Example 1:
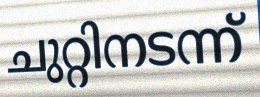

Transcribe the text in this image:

ചുറ്റിനടന്ന്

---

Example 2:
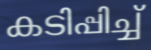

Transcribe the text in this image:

കടിപ്പിച്ച്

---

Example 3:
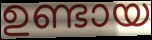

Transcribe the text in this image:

ഉണ്ടായ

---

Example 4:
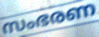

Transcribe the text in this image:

സംഭരണ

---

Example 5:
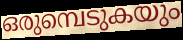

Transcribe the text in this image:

ഒരുമ്പെടുകയും